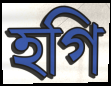
হগি